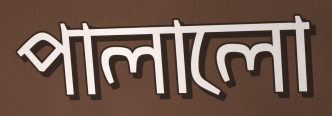
পালালো